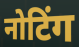
नोटिंग